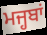
ਮਜ੍ਹਬਾਂ